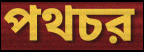
পথচর